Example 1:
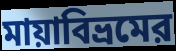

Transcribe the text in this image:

মায়াবিভ্রমের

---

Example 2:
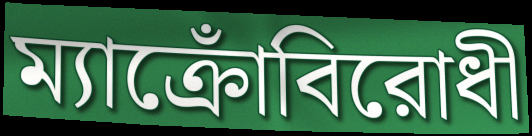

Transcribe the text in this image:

ম্যাক্রোঁবিরোধী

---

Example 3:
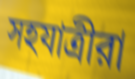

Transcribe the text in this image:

সহযাত্রীরা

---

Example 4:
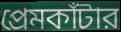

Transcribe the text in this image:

প্রেমকাঁটার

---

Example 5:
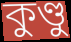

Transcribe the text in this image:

কুণ্ডু